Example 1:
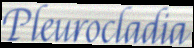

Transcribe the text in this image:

Pleurocladia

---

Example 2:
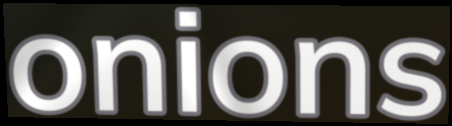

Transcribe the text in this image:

onions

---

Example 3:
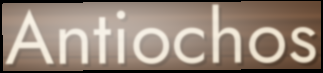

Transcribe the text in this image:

Antiochos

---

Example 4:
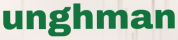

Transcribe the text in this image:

unghman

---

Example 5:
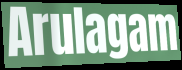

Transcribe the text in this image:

Arulagam